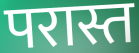
परास्त